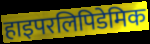
हाइपरलिपिडेमिक